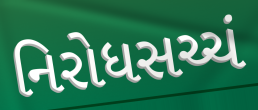
નિરોધસચ્ચં